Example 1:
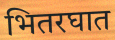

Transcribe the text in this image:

भितरघात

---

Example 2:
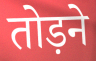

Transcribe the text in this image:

तोड़ने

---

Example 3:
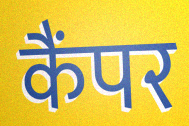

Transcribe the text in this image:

कैंपर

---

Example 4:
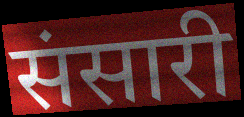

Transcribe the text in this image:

संसारी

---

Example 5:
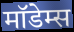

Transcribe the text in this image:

मॉडेम्स